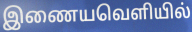
இணையவெளியில்